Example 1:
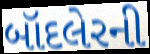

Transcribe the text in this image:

બૉદલેરની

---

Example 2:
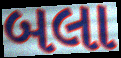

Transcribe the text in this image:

બલા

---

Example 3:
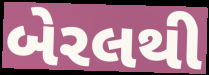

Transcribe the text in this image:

બેરલથી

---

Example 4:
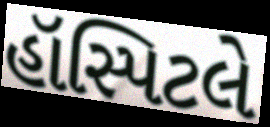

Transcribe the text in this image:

હૉસ્પિટલે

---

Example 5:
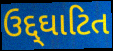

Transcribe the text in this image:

ઉદ્દ્ઘાટિત